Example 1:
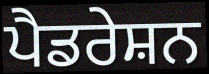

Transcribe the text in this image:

ਪੈਡਰੇਸ਼ਨ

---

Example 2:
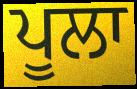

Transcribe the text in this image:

ਪੂਲਾ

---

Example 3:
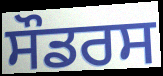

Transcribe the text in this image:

ਸੌਡਰਸ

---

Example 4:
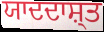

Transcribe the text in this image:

ਯਾਦਦਾਸ਼੍ਤ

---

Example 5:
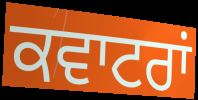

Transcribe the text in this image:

ਕਵਾਟਰਾਂ